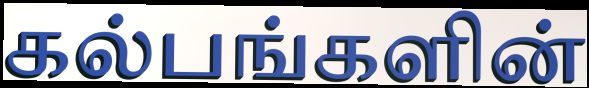
கல்பங்களின்